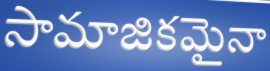
సామాజికమైనా